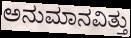
ಅನುಮಾನವಿತ್ತು